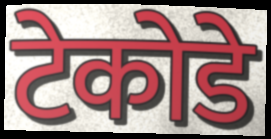
टेकोडे